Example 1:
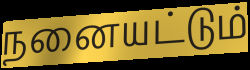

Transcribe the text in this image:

நனையட்டும்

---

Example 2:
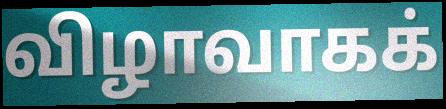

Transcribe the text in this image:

விழாவாகக்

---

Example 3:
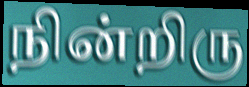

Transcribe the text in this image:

நின்றிரு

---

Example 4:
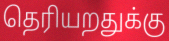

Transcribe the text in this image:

தெரியறதுக்கு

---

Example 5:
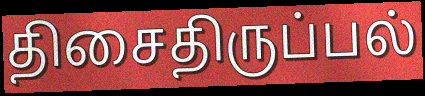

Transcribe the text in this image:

திசைதிருப்பல்